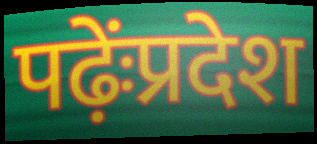
पढ़ेंःप्रदेश